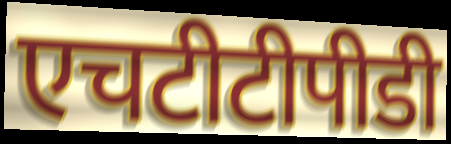
एचटीटीपीडी